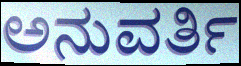
ಅನುವರ್ತಿ